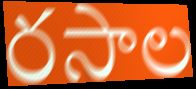
రసాల